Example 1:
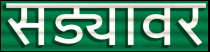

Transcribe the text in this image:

सड्यावर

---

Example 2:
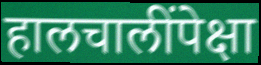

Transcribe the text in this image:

हालचालींपेक्षा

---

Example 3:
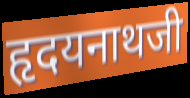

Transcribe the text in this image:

हृदयनाथजी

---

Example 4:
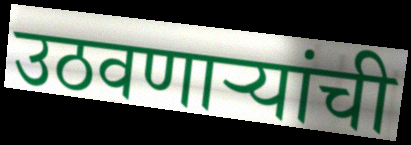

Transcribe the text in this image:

उठवणाऱ्यांची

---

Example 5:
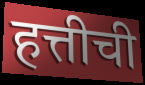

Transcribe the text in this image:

हत्तीची